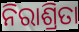
ନିରାଶ୍ରିତା